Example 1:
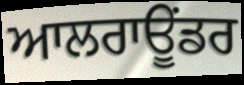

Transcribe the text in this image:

ਆਲਰਾਊਂਡਰ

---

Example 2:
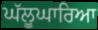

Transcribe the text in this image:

ਘੱਲੂਘਾਰਿਆ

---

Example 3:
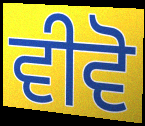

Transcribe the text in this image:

ਵੀਵੋ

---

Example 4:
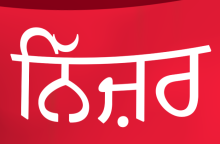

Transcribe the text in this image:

ਨਿੱਜ਼ਰ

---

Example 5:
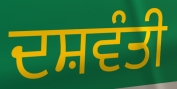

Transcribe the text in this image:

ਦਸ਼ਵੰਤੀ